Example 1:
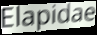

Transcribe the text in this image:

Elapidae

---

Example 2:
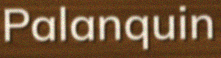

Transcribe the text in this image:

Palanquin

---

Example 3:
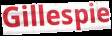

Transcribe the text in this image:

Gillespie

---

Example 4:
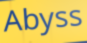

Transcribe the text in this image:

Abyss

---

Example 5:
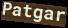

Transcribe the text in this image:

Patgar